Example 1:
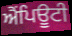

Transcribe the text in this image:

ਐਂਪਿਊਟੀ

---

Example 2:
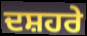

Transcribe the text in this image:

ਦਸ਼ਹਰੇ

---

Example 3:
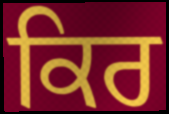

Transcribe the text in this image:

ਕਿਰ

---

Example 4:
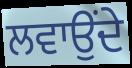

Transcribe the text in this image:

ਲਵਾਉਂਦੇ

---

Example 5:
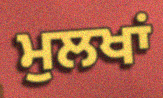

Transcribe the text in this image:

ਮੁਲਖਾਂ